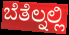
ಬೆತೆಲ್ನಲ್ಲಿ